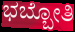
ಭಬ್ಬೋತಿ